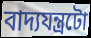
বাদ্যযন্ত্ৰটো